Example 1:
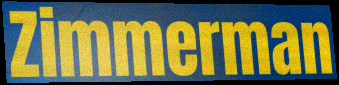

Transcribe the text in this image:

Zimmerman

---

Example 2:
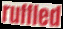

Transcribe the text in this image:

ruffled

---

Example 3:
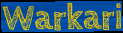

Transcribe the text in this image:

Warkari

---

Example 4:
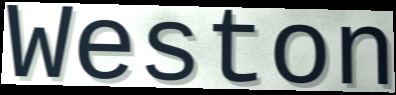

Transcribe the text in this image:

Weston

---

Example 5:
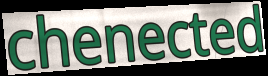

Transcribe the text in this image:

chenected